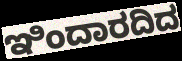
ಇಿಂದಾರದಿದ